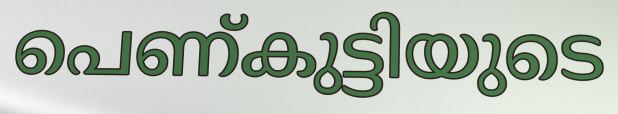
പെണ്കുട്ടിയുടെ